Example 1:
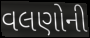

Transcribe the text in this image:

વલણોની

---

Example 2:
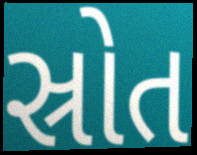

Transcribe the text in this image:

સ્રોત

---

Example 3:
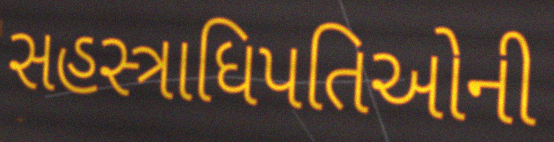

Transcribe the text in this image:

સહસ્ત્રાધિપતિઓની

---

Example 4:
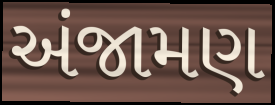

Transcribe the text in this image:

અંજામણ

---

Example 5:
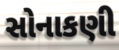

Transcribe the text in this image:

સોનાકણી